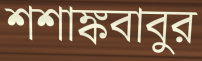
শশাঙ্কবাবুর